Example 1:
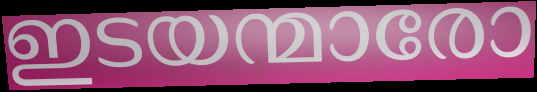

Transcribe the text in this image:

ഇടയന്മാരോ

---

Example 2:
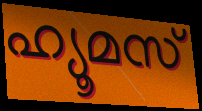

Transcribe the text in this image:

ഹ്യൂമസ്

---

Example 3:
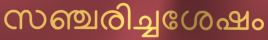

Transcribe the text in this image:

സഞ്ചരിച്ചശേഷം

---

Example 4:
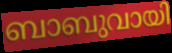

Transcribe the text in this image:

ബാബുവായി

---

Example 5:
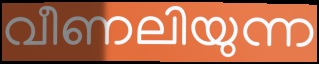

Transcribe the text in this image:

വീണലിയുന്ന